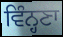
ਵਿੰਨ੍ਹਣਾ